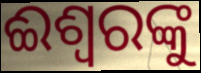
ଈଶ୍ଵରଙ୍କୁ